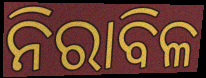
ନିରାବିଳ